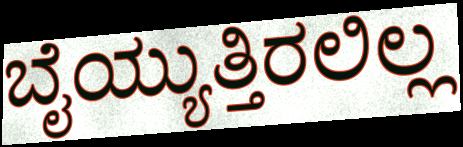
ಬೈಯ್ಯುತ್ತಿರಲಿಲ್ಲ